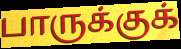
பாருக்குக்